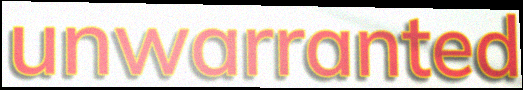
unwarranted